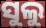
ସୁଲୁ